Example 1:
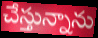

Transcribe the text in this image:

చేస్తున్నాను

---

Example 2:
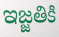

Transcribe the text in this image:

ఇజ్జతికి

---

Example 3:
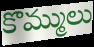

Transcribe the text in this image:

కొమ్ములు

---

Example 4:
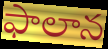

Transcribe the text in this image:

ఫాలాన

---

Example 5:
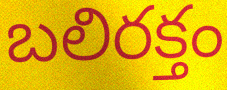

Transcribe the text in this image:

బలిరక్తం